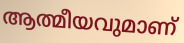
ആത്മീയവുമാണ്